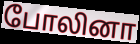
போலினா